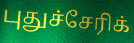
புதுச்சேரிக்